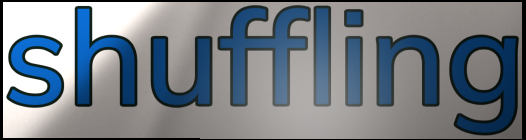
shuffling